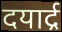
दयार्द्र